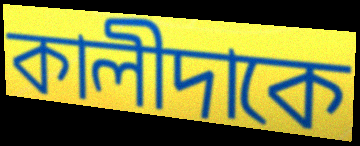
কালীদাকে